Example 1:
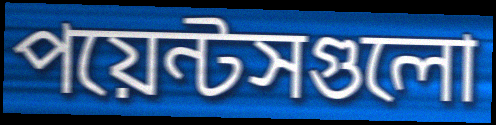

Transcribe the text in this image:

পয়েন্টসগুলো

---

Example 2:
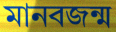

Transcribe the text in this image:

মানবজন্ম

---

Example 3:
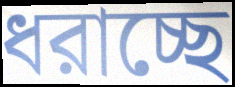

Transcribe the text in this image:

ধরাচ্ছে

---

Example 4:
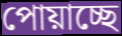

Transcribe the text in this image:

পোয়াচ্ছে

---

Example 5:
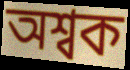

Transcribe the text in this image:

অশ্বক